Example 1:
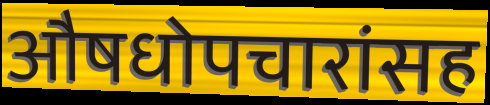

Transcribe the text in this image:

औषधोपचारांसह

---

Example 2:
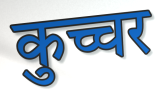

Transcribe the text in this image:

कुच्चर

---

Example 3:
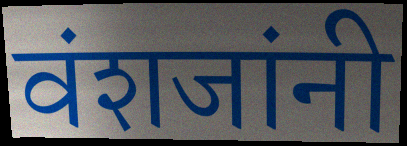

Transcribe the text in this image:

वंशजांनी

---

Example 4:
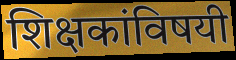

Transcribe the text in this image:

शिक्षकांविषयी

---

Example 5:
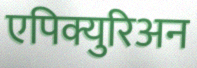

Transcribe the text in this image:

एपिक्युरिअन